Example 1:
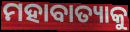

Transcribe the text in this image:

ମହାବାତ୍ୟାକୁ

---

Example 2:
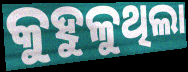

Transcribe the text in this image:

କୁହୁଳୁଥିଲା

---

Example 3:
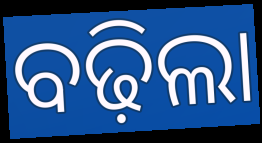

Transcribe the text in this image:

ବଢ଼ିଲା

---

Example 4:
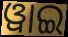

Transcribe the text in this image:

ୱାଇ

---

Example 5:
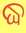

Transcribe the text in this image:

ଦ୍ଧ